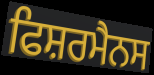
ਫਿਸ਼ਰਮੈਨਸ